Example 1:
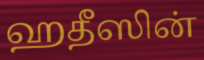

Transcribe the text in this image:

ஹதீஸின்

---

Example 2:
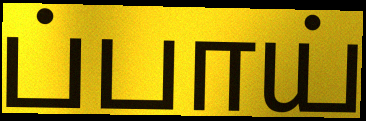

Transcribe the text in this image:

ப்பாய்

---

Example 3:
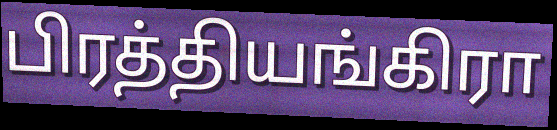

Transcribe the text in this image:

பிரத்தியங்கிரா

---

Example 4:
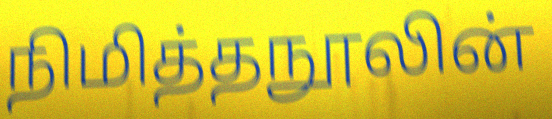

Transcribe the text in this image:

நிமித்தநூலின்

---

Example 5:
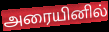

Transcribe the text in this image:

அரையினில்